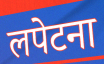
लपेटना